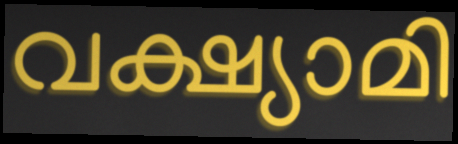
വക്ഷ്യാമി